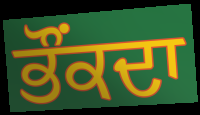
ਭੌਂਕਦਾ